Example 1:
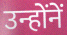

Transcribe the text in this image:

उन्‍होंनें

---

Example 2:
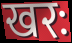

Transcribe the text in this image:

खरः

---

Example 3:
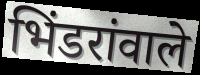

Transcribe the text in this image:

भिंडरांवाले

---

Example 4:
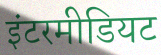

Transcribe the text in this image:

इंटरमीडियट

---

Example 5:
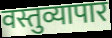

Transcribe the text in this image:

वस्तुव्यापार